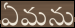
ఏమను